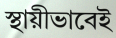
স্থায়ীভাবেই